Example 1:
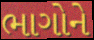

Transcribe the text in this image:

ભાગોને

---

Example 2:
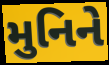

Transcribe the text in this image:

મુનિને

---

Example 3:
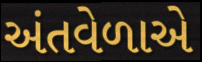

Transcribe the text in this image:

અંતવેળાએ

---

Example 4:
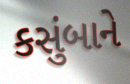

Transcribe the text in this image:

કસુંબાને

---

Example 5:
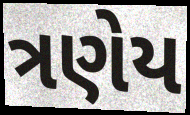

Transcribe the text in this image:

ત્રણેય